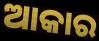
ଆକାର